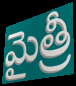
మైత్రీ